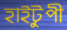
হাইটুপী